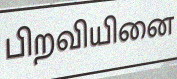
பிறவியினை